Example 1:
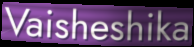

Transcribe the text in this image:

Vaisheshika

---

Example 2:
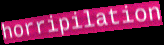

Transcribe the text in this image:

horripilation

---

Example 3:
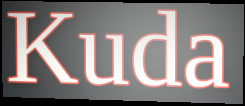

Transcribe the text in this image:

Kuda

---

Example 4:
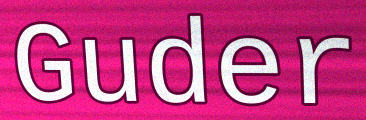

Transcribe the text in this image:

Guder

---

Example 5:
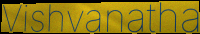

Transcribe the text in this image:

Vishvanatha